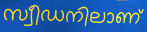
സ്വീഡനിലാണ്